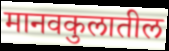
मानवकुलातील